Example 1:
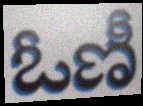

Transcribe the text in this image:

ఓణీ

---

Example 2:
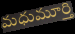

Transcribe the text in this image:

మధుమూర్తి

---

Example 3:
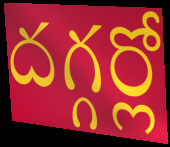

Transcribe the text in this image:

దగ్గర్లో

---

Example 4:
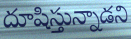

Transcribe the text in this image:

దూషిస్తున్నాడని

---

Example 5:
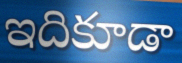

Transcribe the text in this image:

ఇదికూడా